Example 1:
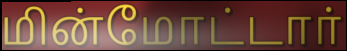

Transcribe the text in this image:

மின்மோட்டார்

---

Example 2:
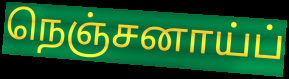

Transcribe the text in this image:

நெஞ்சனாய்ப்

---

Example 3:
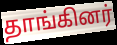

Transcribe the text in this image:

தாங்கினர்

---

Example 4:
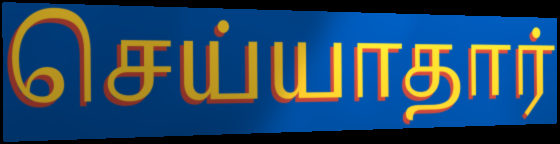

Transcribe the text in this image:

செய்யாதார்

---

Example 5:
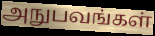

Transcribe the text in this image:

அநுபவங்கள்